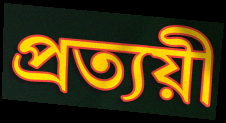
প্ৰত্যয়ী